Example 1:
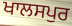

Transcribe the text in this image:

ਖਾਲਸਪੁਰ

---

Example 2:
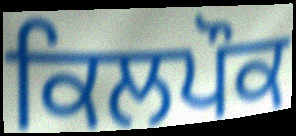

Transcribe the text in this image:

ਕਿਲਪੌਕ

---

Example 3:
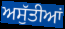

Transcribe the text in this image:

ਅਸੁੱਤੀਆਂ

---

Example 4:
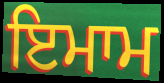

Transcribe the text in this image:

ਇਮਾਮ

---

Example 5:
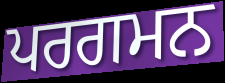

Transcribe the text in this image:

ਪਰਗਮਨ